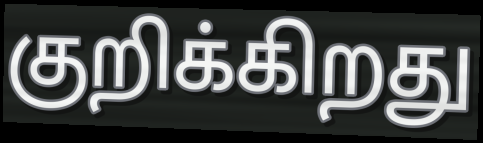
குறிக்கிறது